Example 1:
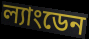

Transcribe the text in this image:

ল্যাংডেন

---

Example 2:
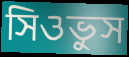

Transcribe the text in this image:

সিওভুস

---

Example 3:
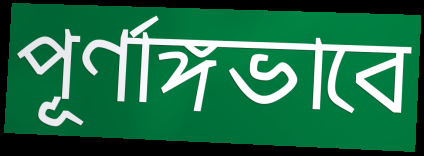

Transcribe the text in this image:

পূর্ণাঙ্গভাবে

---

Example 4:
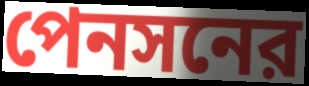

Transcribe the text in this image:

পেনসনের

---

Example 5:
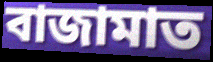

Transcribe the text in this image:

বাজামাত